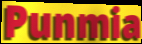
Punmia